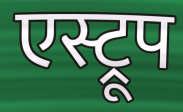
एस्ट्रूप